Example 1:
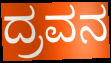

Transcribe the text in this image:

ದ್ರವನ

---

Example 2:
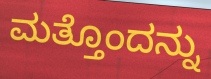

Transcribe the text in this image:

ಮತ್ತೊಂದನ್ನು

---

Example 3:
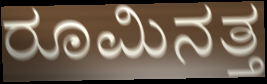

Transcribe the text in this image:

ರೂಮಿನತ್ತ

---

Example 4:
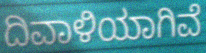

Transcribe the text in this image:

ದಿವಾಳಿಯಾಗಿವೆ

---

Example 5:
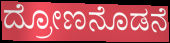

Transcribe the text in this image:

ದ್ರೋಣನೊಡನೆ